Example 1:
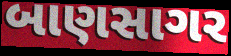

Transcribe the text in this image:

બાણસાગર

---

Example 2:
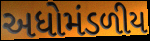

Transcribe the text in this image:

અધોમંડળીય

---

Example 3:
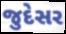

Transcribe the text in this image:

જુદેસર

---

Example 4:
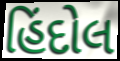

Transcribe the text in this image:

હિંદોલ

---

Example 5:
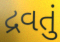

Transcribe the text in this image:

દ્રવતું